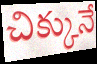
చిక్కునే